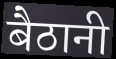
बैठानी